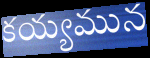
కయ్యమున